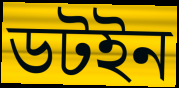
ডটইন